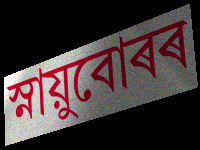
স্নায়ুবোৰৰ